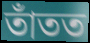
তাঁতত